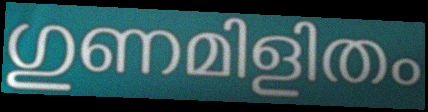
ഗുണമിളിതം